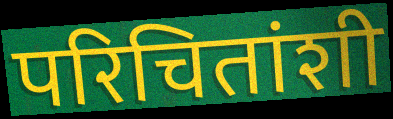
परिचितांशी